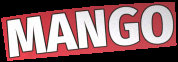
MANGO